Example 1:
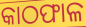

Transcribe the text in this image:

କାଠଫାଳ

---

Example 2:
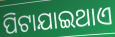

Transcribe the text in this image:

ପିଟାଯାଇଥାଏ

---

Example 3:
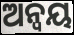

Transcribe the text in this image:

ଅନ୍ୱୟ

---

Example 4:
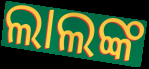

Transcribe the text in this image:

ଲାଲଙ୍କ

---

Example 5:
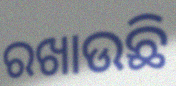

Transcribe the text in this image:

ରଖାଉଛି